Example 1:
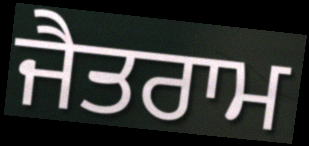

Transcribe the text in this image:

ਜੈਤਰਾਮ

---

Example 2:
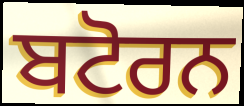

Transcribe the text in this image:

ਬਟੋਰਨ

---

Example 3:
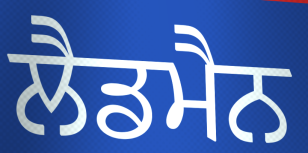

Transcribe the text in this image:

ਲੈਡਮੈਨ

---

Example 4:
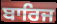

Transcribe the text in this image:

ਬਾਰਿਜ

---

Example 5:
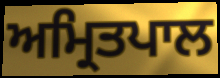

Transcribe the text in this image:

ਅਮ੍ਰਿਤਪਾਲ